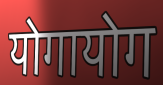
योगायोग